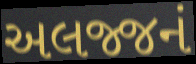
અલજ્જનં